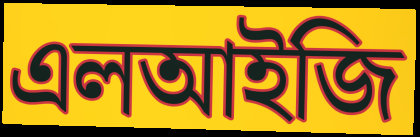
এলআইজি